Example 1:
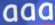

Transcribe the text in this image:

aaa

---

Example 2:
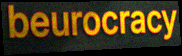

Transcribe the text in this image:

beurocracy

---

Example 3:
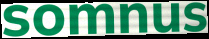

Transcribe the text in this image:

somnus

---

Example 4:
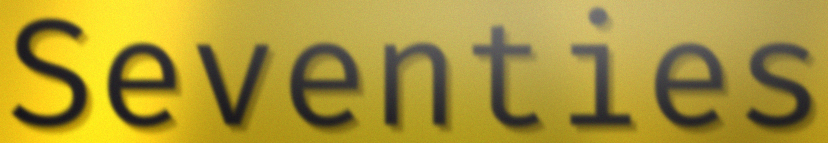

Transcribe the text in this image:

Seventies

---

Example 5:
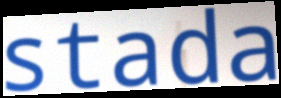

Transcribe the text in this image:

stada